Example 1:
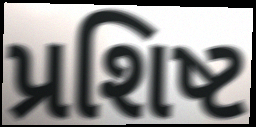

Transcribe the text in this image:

પ્રશિષ્ટ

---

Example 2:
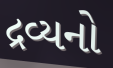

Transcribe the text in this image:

દ્રવ્યનો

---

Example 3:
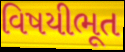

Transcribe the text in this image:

વિષયીભૂત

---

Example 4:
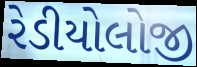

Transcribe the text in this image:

રેડીયોલોજી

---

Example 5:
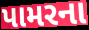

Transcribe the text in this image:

પામરના